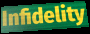
Infidelity